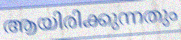
ആയിരിക്കുന്നതും